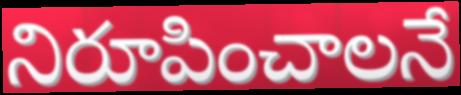
నిరూపించాలనే